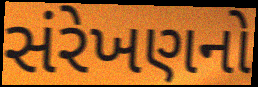
સંરેખણનો